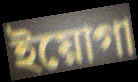
ইয়োগা